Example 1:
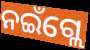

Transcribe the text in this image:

ନଇଁଗ୍ଲେ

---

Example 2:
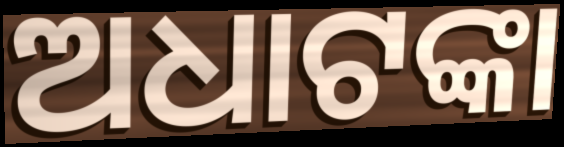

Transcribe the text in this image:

ଅଧାଟଙ୍କା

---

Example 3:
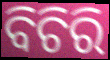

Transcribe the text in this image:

ବିଚିରି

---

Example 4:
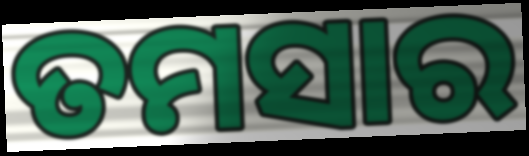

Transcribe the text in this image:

ତମସାର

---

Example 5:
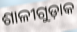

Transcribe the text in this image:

ଶାଳୀଗୁଡ଼ାକ